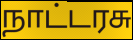
நாட்டரசு